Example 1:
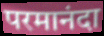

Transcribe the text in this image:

परमानंदा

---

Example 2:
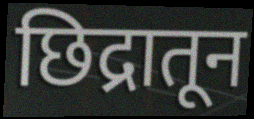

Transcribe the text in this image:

छिद्रातून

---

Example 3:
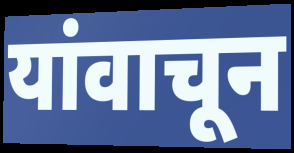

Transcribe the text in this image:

यांवाचून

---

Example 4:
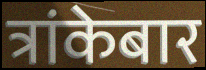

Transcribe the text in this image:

त्रांकेबार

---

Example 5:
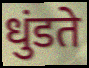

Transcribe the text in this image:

धुंडते